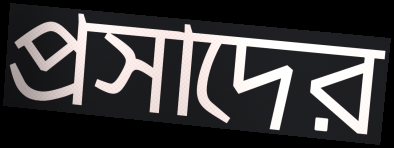
প্রসাদের